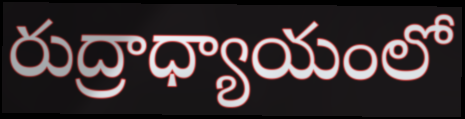
రుద్రాధ్యాయంలో